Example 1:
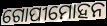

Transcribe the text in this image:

ଗୋପୀମୋହନ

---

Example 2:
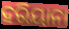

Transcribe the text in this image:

ହରିୟାନା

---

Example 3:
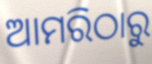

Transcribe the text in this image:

ଆମରିଠାରୁ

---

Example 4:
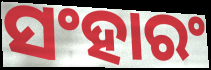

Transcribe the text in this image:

ସଂହାରଂ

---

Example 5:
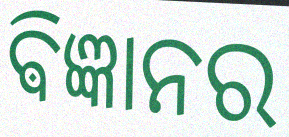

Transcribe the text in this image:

ଵିଜ୍ଞାନର